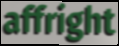
affright